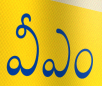
వీఎం